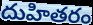
దుహితరం